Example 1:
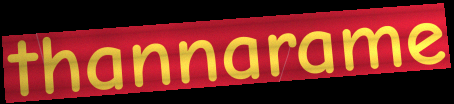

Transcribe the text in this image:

thannarame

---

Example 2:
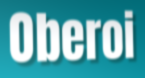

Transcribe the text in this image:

Oberoi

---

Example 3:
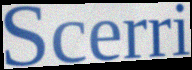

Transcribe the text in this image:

Scerri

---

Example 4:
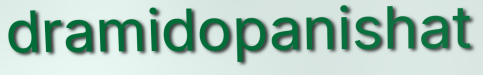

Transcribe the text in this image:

dramidopanishat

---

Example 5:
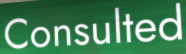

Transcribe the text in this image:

Consulted